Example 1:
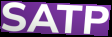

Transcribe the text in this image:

SATP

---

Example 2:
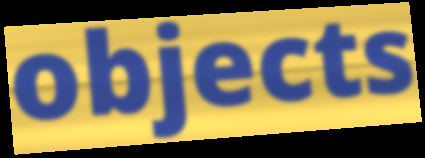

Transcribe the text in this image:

objects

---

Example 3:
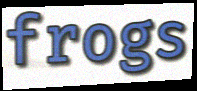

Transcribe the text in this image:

frogs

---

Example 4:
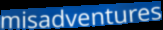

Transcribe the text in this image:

misadventures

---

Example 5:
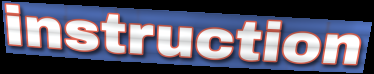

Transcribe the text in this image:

instruction